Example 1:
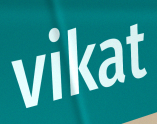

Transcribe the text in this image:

vikat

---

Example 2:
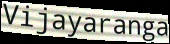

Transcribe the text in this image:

Vijayaranga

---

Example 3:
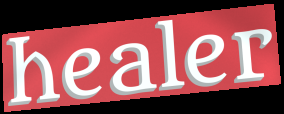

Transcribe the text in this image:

healer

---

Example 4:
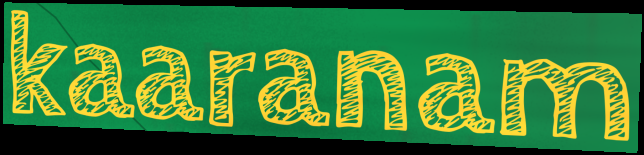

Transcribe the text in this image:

kaaranam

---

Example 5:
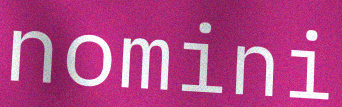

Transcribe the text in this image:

nomini